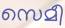
സെമീ